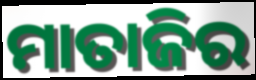
ମାତାଜିର